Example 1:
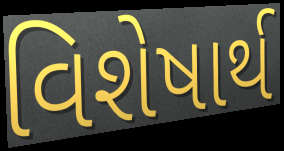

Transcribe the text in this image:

વિશેષાર્થ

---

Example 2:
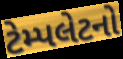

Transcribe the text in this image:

ટેમ્પલેટનો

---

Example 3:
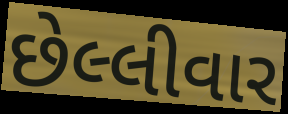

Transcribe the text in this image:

છેલ્લીવાર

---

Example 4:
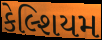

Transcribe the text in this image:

કેલ્શિયમ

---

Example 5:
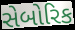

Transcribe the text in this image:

સેબોરિક